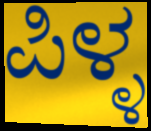
ಪಿಳ್ಳ